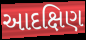
આદક્ષિણ